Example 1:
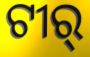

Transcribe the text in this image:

ଟୀର୍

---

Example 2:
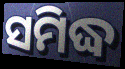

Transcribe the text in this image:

ସମିଦ୍ଧ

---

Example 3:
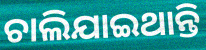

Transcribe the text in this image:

ଚାଲିଯାଇଥାନ୍ତି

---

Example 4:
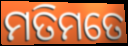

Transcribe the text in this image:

ମତିମତେ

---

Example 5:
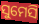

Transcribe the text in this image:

ସୁମେସି